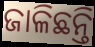
ଜାଳିଛନ୍ତି